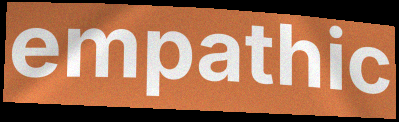
empathic